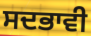
ਸਦਭਾਵੀ